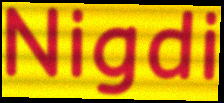
Nigdi